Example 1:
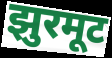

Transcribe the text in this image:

झुरमूट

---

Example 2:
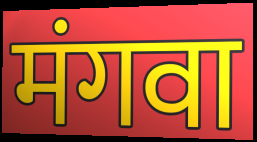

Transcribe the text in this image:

मंगवा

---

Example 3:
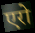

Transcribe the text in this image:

एरो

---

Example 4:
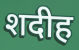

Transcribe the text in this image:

शदीह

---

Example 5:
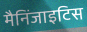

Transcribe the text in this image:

मैनिंजाइटिस